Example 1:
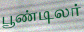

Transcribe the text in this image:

பூண்டிலர்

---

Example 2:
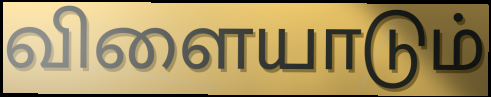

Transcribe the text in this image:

விளையாடும்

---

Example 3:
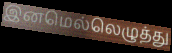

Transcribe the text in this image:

இனமெல்லெழுத்து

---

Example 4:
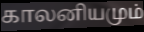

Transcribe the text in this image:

காலனியமும்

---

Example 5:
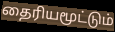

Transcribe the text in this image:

தைரியமூட்டும்